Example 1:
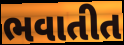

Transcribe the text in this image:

ભવાતીત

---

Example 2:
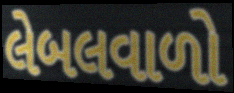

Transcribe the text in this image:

લેબલવાળો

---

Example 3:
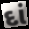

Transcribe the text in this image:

દાં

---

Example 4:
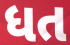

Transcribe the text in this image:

ધત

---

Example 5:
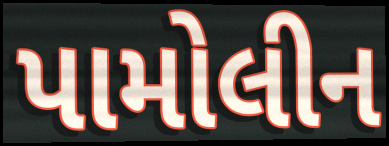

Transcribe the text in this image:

પામોલીન